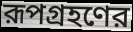
রূপগ্রহণের